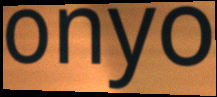
onyo